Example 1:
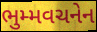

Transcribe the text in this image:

ભુમ્મવચનેન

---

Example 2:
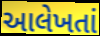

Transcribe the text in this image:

આલેખતાં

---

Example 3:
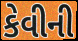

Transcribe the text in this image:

કેવીની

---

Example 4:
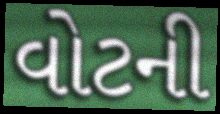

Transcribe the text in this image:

વોટની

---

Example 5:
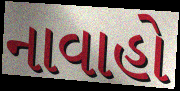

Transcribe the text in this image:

નાવાહો